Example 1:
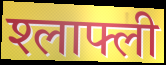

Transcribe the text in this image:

श्लाफ्ली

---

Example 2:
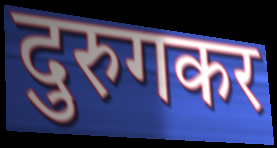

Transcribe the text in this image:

दुरुगकर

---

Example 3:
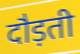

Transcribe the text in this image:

दौड़ती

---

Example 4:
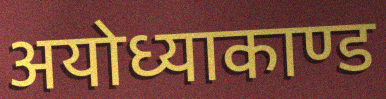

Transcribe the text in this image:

अयोध्याकाण्ड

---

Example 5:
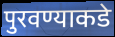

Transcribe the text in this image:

पुरवण्याकडे